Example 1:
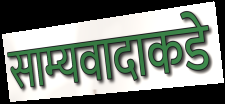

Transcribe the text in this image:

साम्यवादाकडे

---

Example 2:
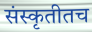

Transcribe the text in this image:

संस्कृतीतच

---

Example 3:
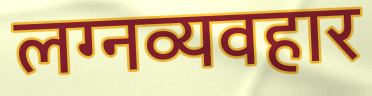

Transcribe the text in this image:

लग्नव्यवहार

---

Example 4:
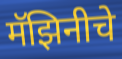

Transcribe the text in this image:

मॅझिनीचे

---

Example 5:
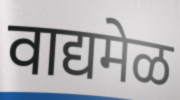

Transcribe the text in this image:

वाद्यमेळ